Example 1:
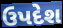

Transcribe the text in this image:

ઉપદેશ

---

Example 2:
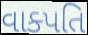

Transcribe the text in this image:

વાક્પતિ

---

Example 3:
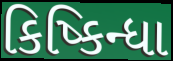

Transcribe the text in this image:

કિષ્કિન્ધા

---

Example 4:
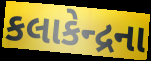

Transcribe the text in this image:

કલાકેન્દ્રના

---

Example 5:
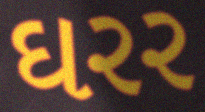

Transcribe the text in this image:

ઘરર